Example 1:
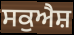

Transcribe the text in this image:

ਸਕੁਐਸ਼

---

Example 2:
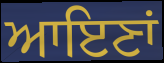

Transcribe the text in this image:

ਆਇਣਾਂ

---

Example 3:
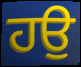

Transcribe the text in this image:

ਹਉ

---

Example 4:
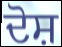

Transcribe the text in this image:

ਦੋਸ਼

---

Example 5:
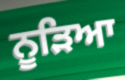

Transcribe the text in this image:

ਨੂੜਿਆ